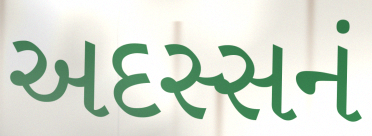
અદસ્સનં